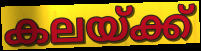
കലയ്ക്ക്